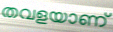
തവളയാണ്